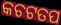
କଚଟତପ